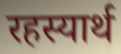
रहस्यार्थ